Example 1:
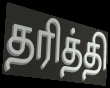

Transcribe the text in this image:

தரித்தி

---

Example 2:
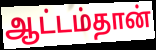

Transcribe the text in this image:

ஆட்டம்தான்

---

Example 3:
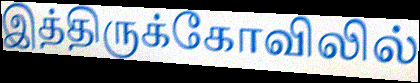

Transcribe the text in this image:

இத்திருக்கோவிலில்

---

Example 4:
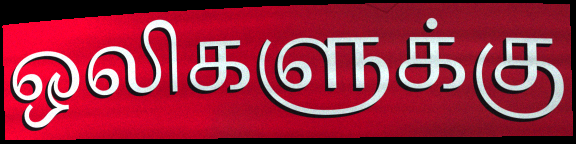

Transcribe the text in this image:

ஒலிகளுக்கு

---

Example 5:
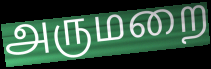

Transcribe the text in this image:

அருமறை